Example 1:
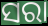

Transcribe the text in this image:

ସରା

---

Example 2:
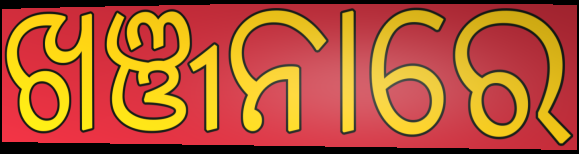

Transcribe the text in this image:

ଖଞ୍ଜନାରେ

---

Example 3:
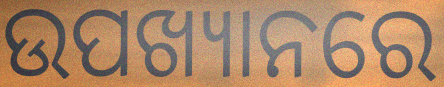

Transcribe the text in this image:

ଉପଖ୍ୟାନରେ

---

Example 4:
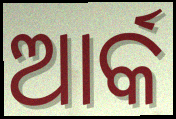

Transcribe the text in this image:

ଆର୍କ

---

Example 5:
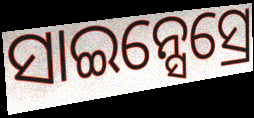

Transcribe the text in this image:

ସାଇନ୍ସେସ୍ରେ